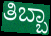
ತಿಬ್ಬಾ